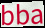
bba